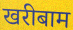
खरीबाम